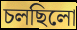
চলছিলো